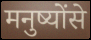
मनुष्योंसे